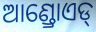
ଆଣ୍ଡ୍ରୋଏଡ୍